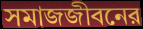
সমাজজীবনের